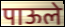
पाऊले